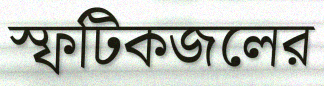
স্ফটিকজলের